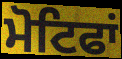
ਮੋਟਿਫਾਂ